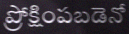
ప్రోక్షింపబడెనో